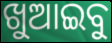
ଖୁଆଇବୁ